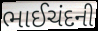
ભાઈચંદની